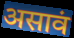
असावं